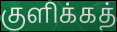
குளிக்கத்